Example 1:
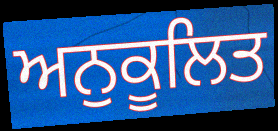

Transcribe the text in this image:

ਅਨੁਕੂਲਿਤ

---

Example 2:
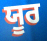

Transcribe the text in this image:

ਯੂਰ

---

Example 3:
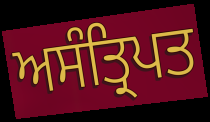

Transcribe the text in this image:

ਅਸੰਤ੍ਰਿਪਤ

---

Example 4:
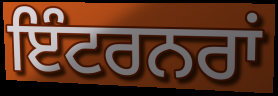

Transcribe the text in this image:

ਇੰਟਰਨਰਾਂ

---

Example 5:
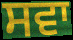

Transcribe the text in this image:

ਸਵਾ